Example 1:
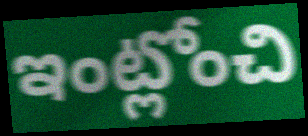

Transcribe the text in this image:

ఇంట్లోంచి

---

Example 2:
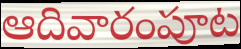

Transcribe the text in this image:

ఆదివారంపూట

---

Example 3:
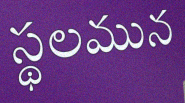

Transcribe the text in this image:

స్థలమున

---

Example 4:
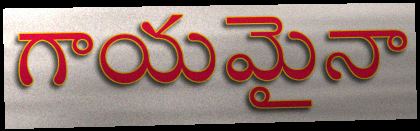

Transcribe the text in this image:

గాయమైనా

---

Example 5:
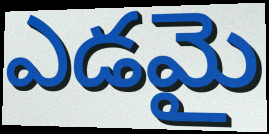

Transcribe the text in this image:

ఎడమై